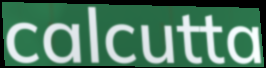
calcutta